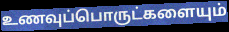
உணவுப்பொருட்களையும்